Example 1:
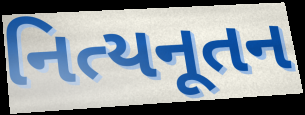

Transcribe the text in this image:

નિત્યનૂતન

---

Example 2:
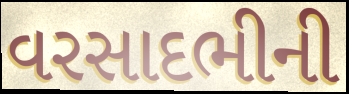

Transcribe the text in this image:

વરસાદભીની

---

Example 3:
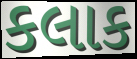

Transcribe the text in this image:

કલાક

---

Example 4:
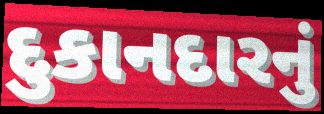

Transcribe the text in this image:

દુકાનદારનું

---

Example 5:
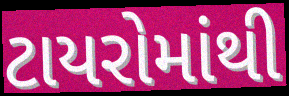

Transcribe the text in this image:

ટાયરોમાંથી